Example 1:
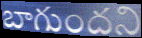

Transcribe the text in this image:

బాగుందని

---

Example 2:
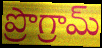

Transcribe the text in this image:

ప్రొగ్రామ్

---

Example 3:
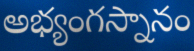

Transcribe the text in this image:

అభ్యంగస్నానం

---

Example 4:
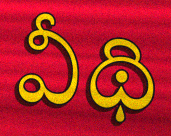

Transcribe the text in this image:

వీథి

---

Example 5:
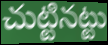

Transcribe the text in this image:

చుట్టినట్టు